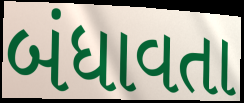
બંધાવતા